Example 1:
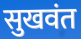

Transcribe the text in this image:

सुखवंत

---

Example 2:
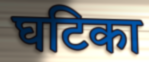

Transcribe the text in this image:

घटिका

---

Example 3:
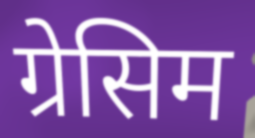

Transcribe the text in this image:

ग्रेसिम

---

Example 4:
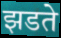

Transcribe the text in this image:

झडते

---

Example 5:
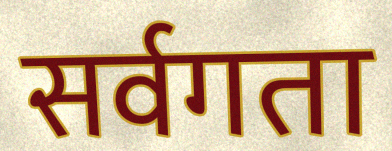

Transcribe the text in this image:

सर्वगता